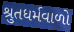
શ્રુતધર્મવાળો